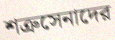
শত্রুসেনাদের